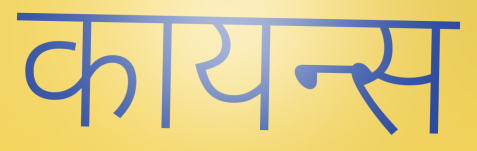
कायन्स